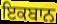
ਇਕਬਾਨ